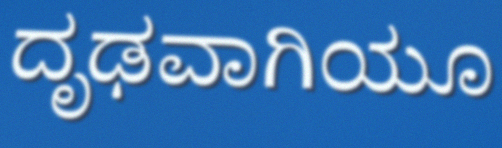
ದೃಢವಾಗಿಯೂ